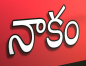
నాకం